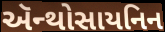
ઍન્થોસાયનિન